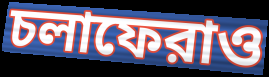
চলাফেরাও